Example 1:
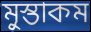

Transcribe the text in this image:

মুস্তাকম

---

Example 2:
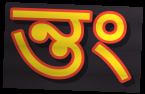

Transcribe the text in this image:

ন্তং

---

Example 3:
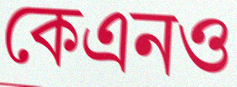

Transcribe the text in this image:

কেএনও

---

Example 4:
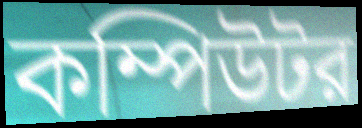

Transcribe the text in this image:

কম্পিউটর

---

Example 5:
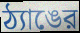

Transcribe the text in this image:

ঠ্যাঙের